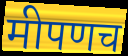
मीपणच